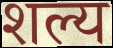
शल्‍य